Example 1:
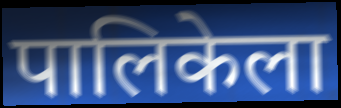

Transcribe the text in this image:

पालिकेला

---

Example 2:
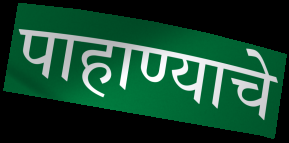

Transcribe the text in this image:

पाहाण्याचे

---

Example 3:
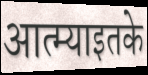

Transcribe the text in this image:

आत्म्याइतके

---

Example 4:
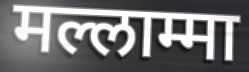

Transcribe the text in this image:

मल्लाम्मा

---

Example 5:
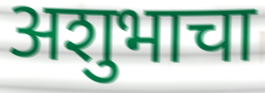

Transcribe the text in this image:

अशुभाचा